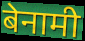
बेनामी